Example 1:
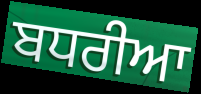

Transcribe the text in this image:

ਬਧਰੀਆ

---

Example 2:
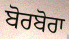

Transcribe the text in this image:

ਬੋਰਬੋਰਾ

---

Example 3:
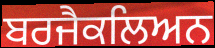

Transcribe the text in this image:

ਬਰਜੈਕਲਿਅਨ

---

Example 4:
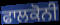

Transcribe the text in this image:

ਫਾਲਕੋਨੀ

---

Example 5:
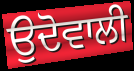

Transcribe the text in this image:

ਉਦੋਵਾਲੀ